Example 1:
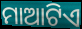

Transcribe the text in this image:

ମାଆଟିଏ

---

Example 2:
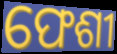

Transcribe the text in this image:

ଫେଶୀ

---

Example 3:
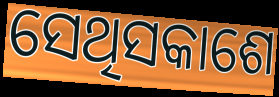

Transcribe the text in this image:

ସେଥିସକାଶେ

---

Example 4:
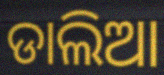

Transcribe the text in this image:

ଡାଲିଆ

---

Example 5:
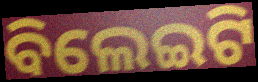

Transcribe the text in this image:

ବିଲେଇଟି